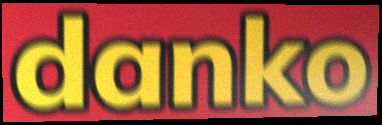
danko